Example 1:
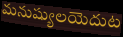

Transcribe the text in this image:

మనుష్యులయెదుట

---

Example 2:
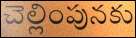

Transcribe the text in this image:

చెల్లింపునకు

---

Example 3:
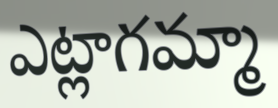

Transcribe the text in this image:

ఎట్లాగమ్మా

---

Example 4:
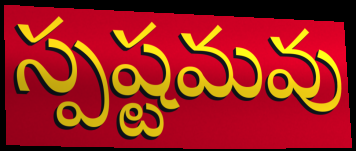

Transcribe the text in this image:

స్పష్టమవు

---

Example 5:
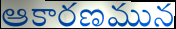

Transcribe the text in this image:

ఆకారణమున